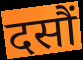
दसौं